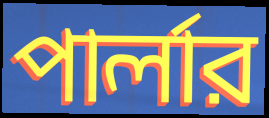
পার্লার